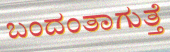
ಬಂದಂತಾಗುತ್ತೆ